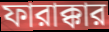
ফারাক্কার